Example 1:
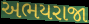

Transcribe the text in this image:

અભયરાજા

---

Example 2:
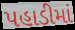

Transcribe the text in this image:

પહાડીમાં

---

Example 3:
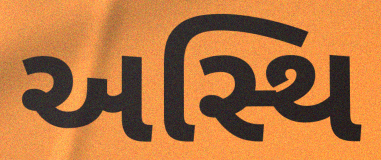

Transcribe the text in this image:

અસ્થિ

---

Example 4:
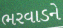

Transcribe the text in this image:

ભરવાડને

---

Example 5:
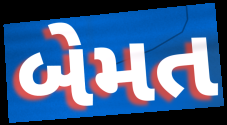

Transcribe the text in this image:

બેમત